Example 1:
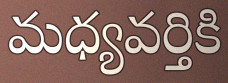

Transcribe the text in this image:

మధ్యవర్తికి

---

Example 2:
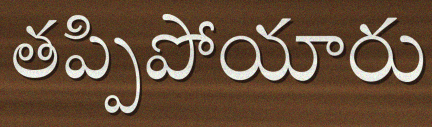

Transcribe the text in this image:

తప్పిపోయారు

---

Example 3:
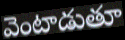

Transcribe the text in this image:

వెంటాడుతూ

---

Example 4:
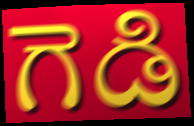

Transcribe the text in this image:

గెడి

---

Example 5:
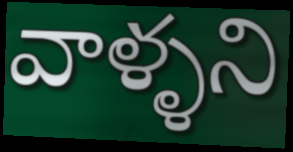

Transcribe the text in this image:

వాళ్ళని